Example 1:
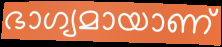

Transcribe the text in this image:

ഭാഗ്യമായാണ്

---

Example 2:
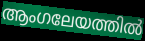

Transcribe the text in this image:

ആംഗലേയത്തിൽ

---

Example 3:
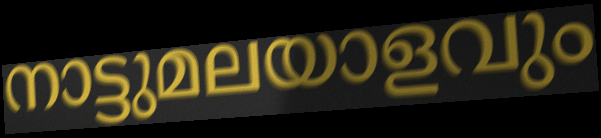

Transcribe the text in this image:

നാട്ടുമലയാളവും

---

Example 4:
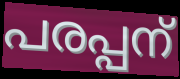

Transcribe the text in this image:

പരപ്പന്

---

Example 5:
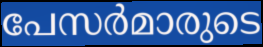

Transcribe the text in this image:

പേസർമാരുടെ